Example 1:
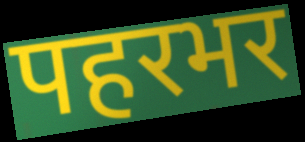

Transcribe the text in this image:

पहरभर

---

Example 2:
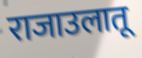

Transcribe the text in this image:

राजाउलातू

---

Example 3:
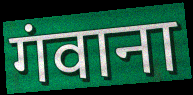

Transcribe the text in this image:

गंवाना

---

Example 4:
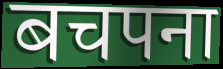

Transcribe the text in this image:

बचपना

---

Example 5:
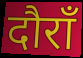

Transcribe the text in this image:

दौराँ